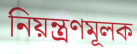
নিয়ন্ত্রণমূলক